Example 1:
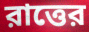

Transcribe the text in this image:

রাত্তের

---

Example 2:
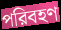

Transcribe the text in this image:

পরিবহণ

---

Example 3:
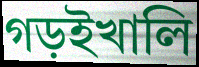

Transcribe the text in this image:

গড়ইখালি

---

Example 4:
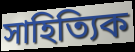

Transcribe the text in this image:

সাহিত্যিক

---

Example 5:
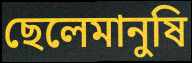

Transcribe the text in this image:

ছেলেমানুষি